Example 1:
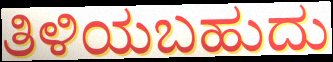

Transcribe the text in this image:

ತಿಳಿಯಬಹುದು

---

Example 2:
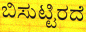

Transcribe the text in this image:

ಬಿಸುಟ್ಟಿರದೆ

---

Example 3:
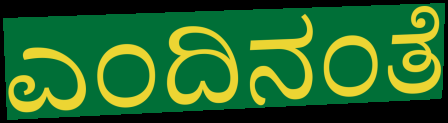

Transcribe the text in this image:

ಎಂದಿನಂತೆ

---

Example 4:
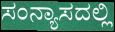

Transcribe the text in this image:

ಸಂನ್ಯಾಸದಲ್ಲಿ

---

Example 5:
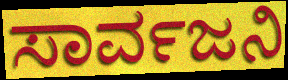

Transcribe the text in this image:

ಸಾರ್ವಜನಿ